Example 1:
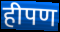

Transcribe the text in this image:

हीपण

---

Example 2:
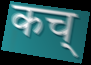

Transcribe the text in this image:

कच्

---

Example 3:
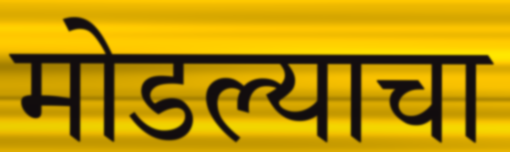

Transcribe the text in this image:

मोडल्याचा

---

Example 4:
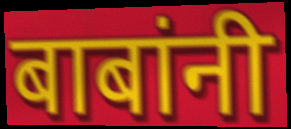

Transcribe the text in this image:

बाबांनी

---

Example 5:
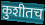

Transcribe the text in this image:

कुशीतच